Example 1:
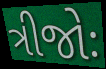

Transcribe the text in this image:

ત્રીજોઃ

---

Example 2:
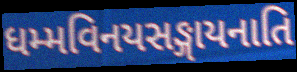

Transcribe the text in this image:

ધમ્મવિનયસઙ્ગાયનાતિ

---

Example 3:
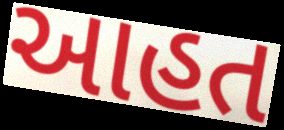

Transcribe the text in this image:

આહત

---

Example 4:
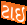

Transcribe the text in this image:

ટાઇ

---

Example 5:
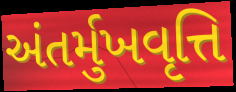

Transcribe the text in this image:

અંતર્મુખવૃત્તિ